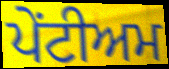
ਪੇਂਟੀਅਮ